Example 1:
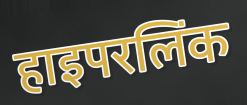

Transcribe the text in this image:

हाइपरलिंक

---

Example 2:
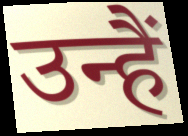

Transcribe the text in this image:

उन्‍हैं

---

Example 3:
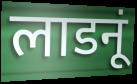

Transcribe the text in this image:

लाडनूं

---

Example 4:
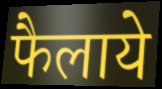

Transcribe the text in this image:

फैलाये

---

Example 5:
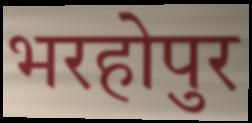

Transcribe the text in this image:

भरहोपुर